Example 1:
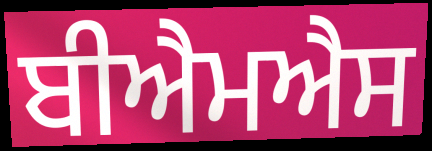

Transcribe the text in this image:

ਬੀਐਮਐਸ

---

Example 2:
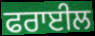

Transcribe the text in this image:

ਫਰਾਈਲ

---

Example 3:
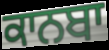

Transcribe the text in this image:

ਕਾਨਬਾ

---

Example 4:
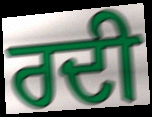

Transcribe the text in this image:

ਰਦੀ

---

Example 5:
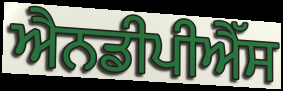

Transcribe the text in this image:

ਐਨਡੀਪੀਐੱਸ